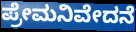
ಪ್ರೇಮನಿವೇದನೆ